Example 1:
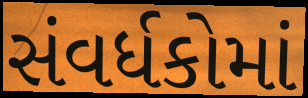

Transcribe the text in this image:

સંવર્ધકોમાં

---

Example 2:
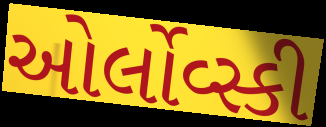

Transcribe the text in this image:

ઓર્લોવ્સ્કી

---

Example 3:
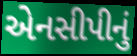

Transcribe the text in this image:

એનસીપીનું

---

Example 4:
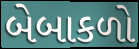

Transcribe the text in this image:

બેબાકળો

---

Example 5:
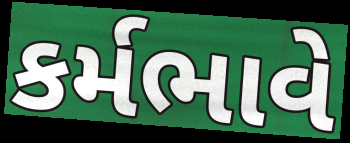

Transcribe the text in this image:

કર્મભાવે